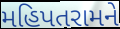
મહિપતરામને